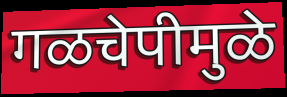
गळचेपीमुळे